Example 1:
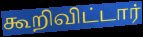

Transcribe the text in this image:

கூறிவிட்டார்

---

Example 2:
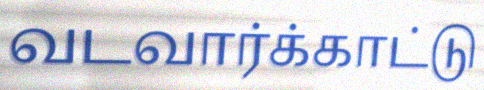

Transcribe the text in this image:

வடவார்க்காட்டு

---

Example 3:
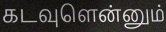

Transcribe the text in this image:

கடவுளென்னும்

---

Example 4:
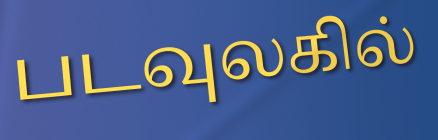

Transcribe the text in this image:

படவுலகில்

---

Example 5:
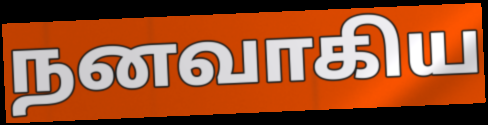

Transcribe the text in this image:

நனவாகிய